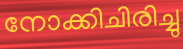
നോക്കിചിരിച്ചു